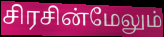
சிரசின்மேலும்